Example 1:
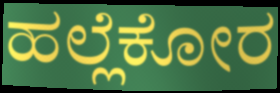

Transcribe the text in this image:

ಹಲ್ಲೆಕೋರ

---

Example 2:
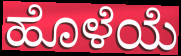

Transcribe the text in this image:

ಹೊಳೆಯೆ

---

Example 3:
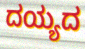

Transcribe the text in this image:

ದಯ್ಯದ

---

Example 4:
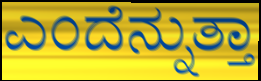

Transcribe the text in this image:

ಎಂದೆನ್ನುತ್ತಾ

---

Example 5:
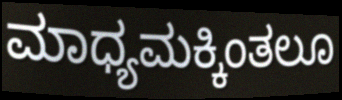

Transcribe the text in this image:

ಮಾಧ್ಯಮಕ್ಕಿಂತಲೂ